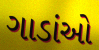
ગાડાંઓ